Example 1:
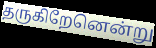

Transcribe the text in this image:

தருகிறேனென்று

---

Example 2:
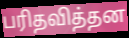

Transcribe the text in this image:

பரிதவித்தன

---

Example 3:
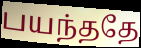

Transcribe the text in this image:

பயந்ததே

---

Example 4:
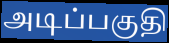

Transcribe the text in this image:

அடிப்பகுதி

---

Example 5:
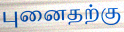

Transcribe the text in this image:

புனைதற்கு